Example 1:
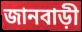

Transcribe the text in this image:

জানবাড়ী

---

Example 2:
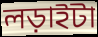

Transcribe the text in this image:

লড়াইটা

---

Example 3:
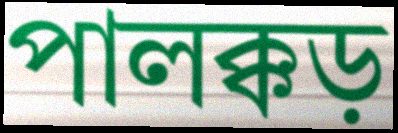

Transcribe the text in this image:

পালক্কড়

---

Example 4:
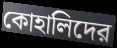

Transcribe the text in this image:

কোহালিদের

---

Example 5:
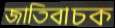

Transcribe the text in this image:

জাতিবাচক